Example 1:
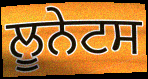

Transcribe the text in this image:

ਲੂਨੇਟਸ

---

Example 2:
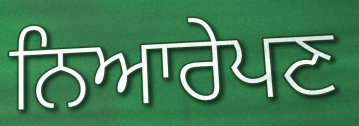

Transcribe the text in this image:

ਨਿਆਰੇਪਣ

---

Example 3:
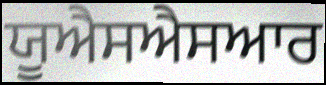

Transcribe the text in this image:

ਯੂਐਸਐਸਆਰ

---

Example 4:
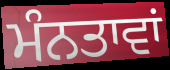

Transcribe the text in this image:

ਮੰਨਤਾਵਾਂ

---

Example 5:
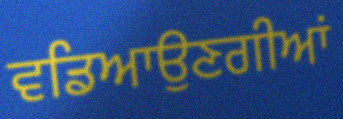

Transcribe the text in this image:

ਵਡਿਆਉਣਗੀਆਂ